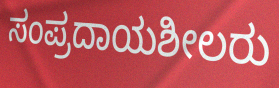
ಸಂಪ್ರದಾಯಶೀಲರು